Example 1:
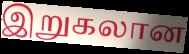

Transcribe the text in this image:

இறுகலான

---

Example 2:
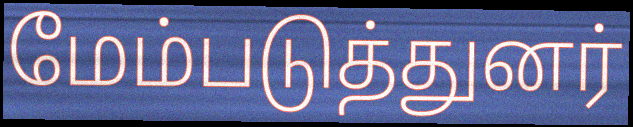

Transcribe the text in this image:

மேம்படுத்துனர்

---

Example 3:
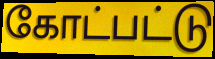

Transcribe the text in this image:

கோட்பட்டு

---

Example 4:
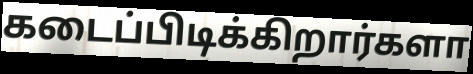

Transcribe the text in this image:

கடைப்பிடிக்கிறார்களா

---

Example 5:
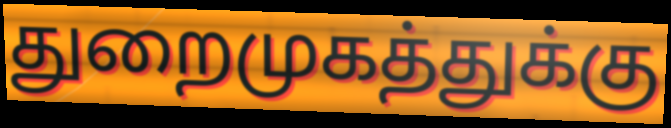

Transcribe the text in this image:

துறைமுகத்துக்கு